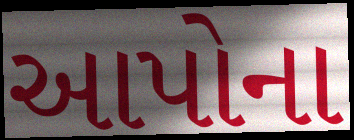
આપોના